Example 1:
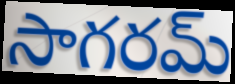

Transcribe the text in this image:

సాగరమ్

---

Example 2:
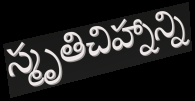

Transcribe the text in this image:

స్మృతిచిహ్నాన్ని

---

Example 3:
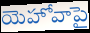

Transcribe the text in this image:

యెహోవాపై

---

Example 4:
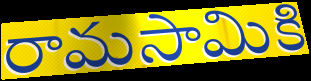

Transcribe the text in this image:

రామసామికి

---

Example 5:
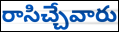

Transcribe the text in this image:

రాసిచ్చేవారు